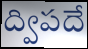
ద్విపదే